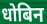
धोबिन